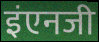
इंएनजी